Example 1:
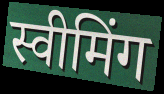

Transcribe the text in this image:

स्वीमिंग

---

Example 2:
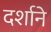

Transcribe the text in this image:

दर्शाने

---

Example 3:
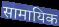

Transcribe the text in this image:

सामायिक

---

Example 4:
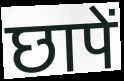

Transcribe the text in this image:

छापें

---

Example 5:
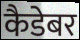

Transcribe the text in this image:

कैडेबर